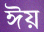
ঈয়